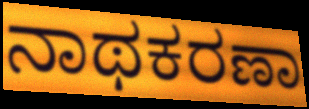
ನಾಥಕರಣಾ